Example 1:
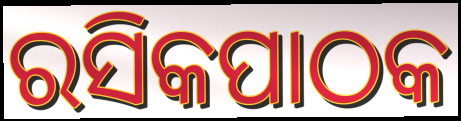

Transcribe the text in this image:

ରସିକପାଠକ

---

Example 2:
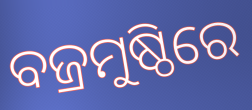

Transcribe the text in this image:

ବଜ୍ରମୁଷ୍ଠିରେ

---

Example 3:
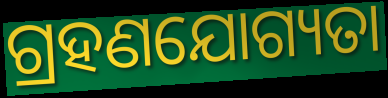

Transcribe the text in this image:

ଗ୍ରହଣଯୋଗ୍ୟତା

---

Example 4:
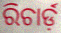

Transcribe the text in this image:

ରିଚାର୍ଡ଼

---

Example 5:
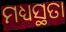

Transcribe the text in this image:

ମଧ୍ୟସ୍ଥତା